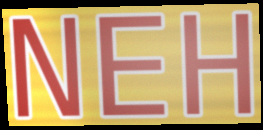
NEH